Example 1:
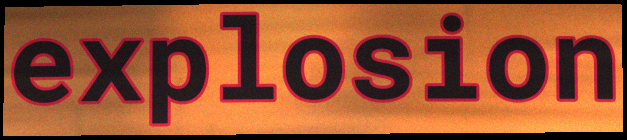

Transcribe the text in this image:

explosion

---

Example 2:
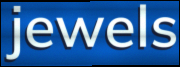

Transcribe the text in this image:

jewels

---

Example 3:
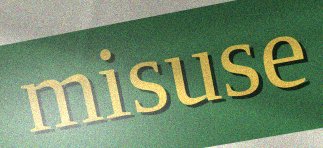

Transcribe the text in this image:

misuse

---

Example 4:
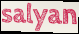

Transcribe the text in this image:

salyan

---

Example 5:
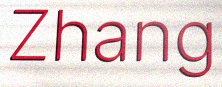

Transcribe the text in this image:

Zhang